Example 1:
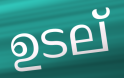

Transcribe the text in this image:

ഉടല്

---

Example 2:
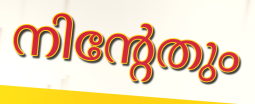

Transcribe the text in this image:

നിന്റേതും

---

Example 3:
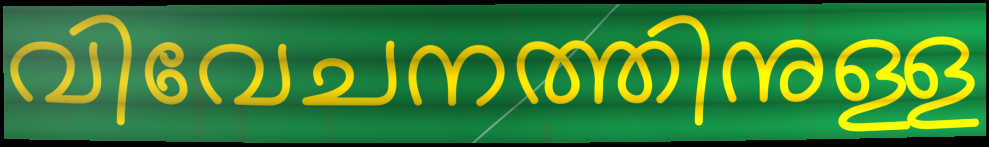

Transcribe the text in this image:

വിവേചനത്തിനുള്ള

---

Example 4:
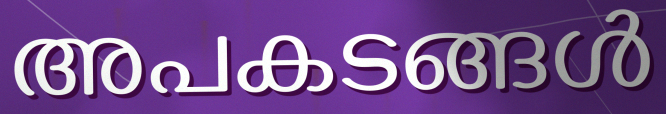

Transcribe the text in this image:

അപകടങ്ങൾ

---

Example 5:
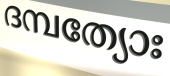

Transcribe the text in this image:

ദമ്പത്യോഃ